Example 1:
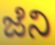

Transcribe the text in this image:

ಜೆನಿ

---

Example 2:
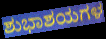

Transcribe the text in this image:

ಶುಭಾಶಯಗಳ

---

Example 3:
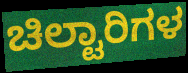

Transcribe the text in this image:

ಚಿಲ್ಟಾರಿಗಳ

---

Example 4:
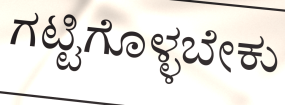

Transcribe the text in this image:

ಗಟ್ಟಿಗೊಳ್ಳಬೇಕು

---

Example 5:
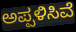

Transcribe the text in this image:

ಅಪ್ಪಳಿಸಿವೆ